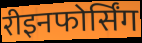
रीइनफोर्सिंग